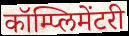
कॉम्प्लिमेंटरी